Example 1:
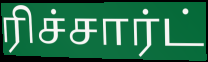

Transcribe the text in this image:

ரிச்சார்ட்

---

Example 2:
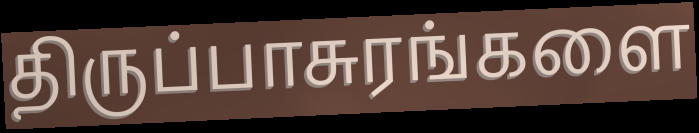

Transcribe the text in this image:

திருப்பாசுரங்களை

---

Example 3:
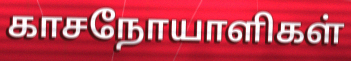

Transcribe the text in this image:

காசநோயாளிகள்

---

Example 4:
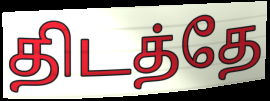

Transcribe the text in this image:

திடத்தே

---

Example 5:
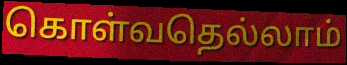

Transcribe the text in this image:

கொள்வதெல்லாம்